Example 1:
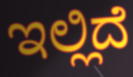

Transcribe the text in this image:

ಇಲ್ಲಿದೆ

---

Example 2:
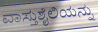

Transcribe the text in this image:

ವಾಸ್ತುಶೈಲಿಯನ್ನು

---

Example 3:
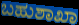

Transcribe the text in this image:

ಬಹುಶಾಖಾ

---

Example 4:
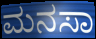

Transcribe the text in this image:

ಮನಸಾ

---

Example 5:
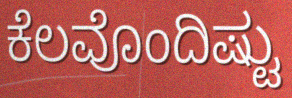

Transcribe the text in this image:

ಕೆಲವೊಂದಿಷ್ಟು